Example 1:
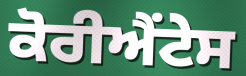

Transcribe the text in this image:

ਕੋਰੀਐਂਟੇਸ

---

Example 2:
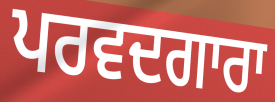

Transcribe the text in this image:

ਪਰਵਦਗਾਰਾ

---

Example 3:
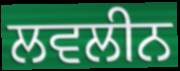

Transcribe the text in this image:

ਲਵਲੀਨ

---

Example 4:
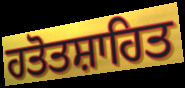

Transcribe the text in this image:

ਹਤੋਤਸ਼ਾਹਿਤ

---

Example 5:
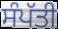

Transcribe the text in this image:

ਸੰਪੱਤੀ